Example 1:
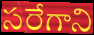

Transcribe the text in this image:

సరేగాని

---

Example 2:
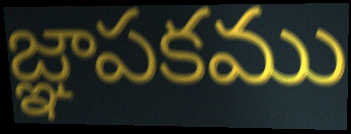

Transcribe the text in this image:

జ్ఞాపకము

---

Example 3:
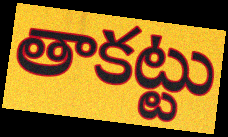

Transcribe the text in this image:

తాకట్టు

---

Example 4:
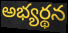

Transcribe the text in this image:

అభ్యర్థన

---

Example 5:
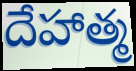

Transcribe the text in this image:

దేహాత్మ